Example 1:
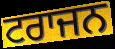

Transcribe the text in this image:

ਟਰਾਜਨ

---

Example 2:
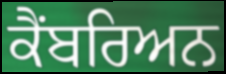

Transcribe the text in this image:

ਕੈਂਬਰਿਅਨ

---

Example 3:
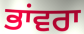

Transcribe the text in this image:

ਭਾਂਵਰਾ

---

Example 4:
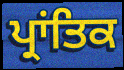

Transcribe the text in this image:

ਪ੍ਰਾਂਤਿਕ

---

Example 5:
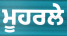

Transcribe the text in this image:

ਮੂਹਰਲੇ